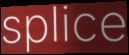
splice